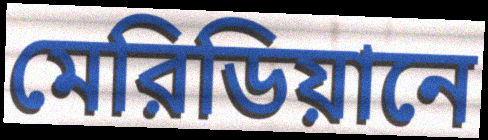
মেরিডিয়ানে